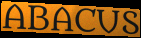
ABACUS